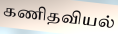
கணிதவியல்